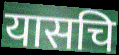
यासचि